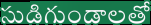
సుడిగుండాలతో